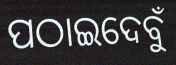
ପଠାଇଦେବୁଁ